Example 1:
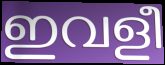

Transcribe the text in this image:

ഇവളീ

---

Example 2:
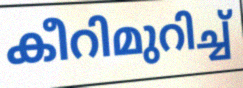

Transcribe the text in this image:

കീറിമുറിച്ച്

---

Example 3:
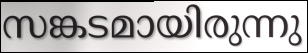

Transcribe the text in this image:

സങ്കടമായിരുന്നു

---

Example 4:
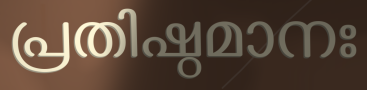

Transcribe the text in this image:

പ്രതിഷ്ഠമാനഃ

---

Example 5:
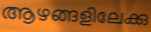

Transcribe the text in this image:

ആഴങ്ങളിലേക്കു